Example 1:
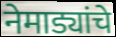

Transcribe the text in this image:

नेमाड्यांचे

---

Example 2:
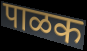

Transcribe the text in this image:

पाळक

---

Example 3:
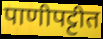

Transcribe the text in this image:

पाणीपट्टीत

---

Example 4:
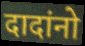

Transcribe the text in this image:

दादांनो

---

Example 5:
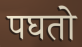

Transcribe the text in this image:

पघतो